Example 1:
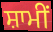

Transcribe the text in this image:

ਸ਼ਾਮੀਂ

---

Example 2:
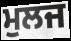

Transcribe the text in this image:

ਮੁਲਜ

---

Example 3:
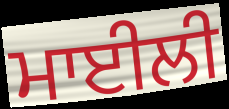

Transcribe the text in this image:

ਮਾਈਲੀ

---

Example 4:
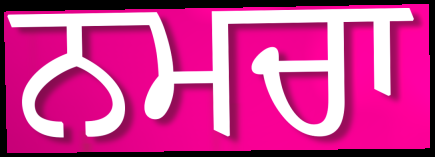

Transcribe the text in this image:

ਨਮਚਾ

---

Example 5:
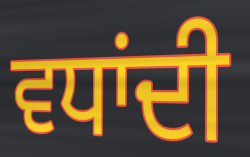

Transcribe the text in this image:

ਵਧਾਂਦੀ